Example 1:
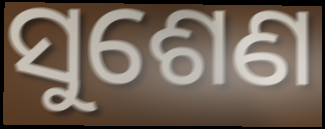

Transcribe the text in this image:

ସୁଶେଣ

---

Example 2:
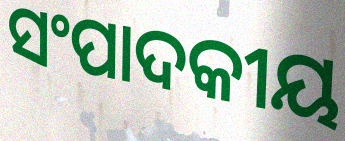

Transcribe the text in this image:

ସଂପାଦକୀୟ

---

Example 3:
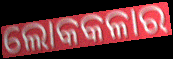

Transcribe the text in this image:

ଲୋକକଳାର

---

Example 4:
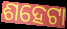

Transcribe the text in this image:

ଶହେଟା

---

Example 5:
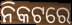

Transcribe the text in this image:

ନିକଟରେ